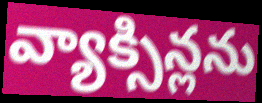
వ్యాక్సిన్లను